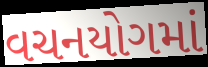
વચનયોગમાં